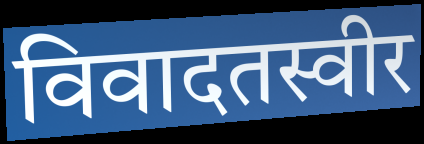
विवादतस्वीर